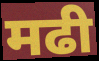
मढी